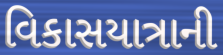
વિકાસયાત્રાની